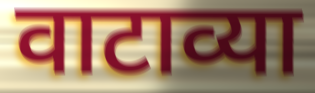
वाटाव्या